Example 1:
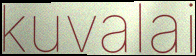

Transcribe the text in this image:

kuvalai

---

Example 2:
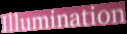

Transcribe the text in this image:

Illumination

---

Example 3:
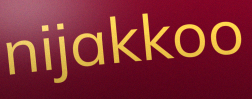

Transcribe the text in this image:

nijakkoo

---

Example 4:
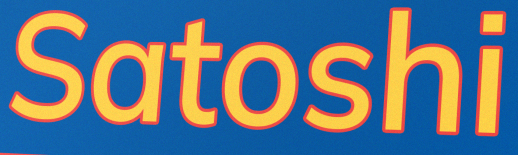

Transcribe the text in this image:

Satoshi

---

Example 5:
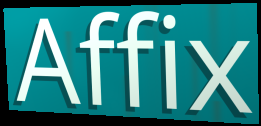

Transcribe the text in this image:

Affix